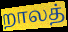
றாலத்